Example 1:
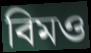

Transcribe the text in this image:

বিমও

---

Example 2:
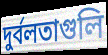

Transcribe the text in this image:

দুর্বলতাগুলি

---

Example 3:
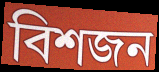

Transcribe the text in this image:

বিশজন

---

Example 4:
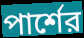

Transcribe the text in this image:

পার্শের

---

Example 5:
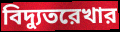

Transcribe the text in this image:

বিদ্যুতরেখার